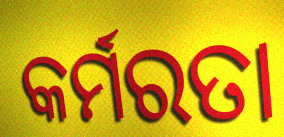
କର୍ମରତା